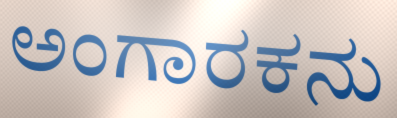
ಅಂಗಾರಕನು